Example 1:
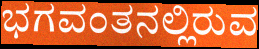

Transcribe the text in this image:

ಭಗವಂತನಲ್ಲಿರುವ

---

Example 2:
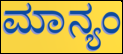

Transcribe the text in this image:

ಮಾನ್ಯಂ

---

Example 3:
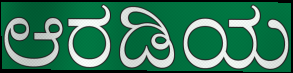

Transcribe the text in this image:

ಆರಡಿಯ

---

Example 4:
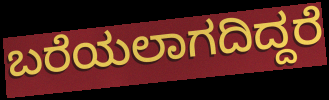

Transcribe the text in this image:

ಬರೆಯಲಾಗದಿದ್ದರೆ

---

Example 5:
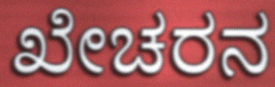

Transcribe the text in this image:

ಖೇಚರನ